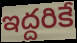
ఇద్దరికే